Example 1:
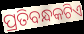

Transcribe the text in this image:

ପ୍ରତିବନ୍ଧକଟିଏ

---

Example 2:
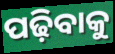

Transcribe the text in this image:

ପଢ଼ିବାକୁ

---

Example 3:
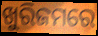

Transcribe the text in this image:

ଖୁରିଜମରେ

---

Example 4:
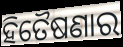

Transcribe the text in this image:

ହିତୈଷଣାର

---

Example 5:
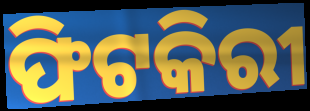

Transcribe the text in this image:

ଫିଟକିରୀ